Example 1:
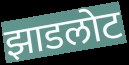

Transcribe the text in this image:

झाडलोट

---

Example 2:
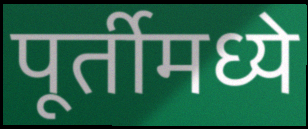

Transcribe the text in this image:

पूर्तीमध्ये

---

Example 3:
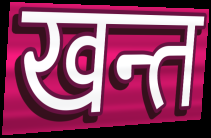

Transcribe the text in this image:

खन्त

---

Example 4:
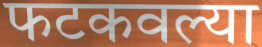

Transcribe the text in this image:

फटकवल्या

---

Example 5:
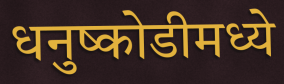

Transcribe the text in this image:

धनुष्कोडीमध्ये